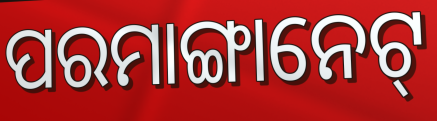
ପରମାଙ୍ଗାନେଟ୍